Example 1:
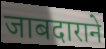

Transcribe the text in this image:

जाबदाराने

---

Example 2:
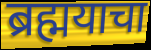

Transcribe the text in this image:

ब्रह्मयाचा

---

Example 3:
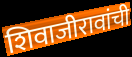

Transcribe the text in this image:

शिवाजीरावांची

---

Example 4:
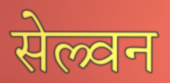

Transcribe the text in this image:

सेल्वन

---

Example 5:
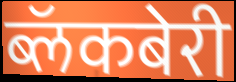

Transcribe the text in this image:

ब्लॅकबेरी